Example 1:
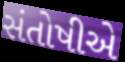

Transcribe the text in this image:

સંતોષીએ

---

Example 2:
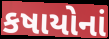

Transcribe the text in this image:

કષાયોનાં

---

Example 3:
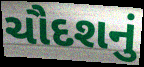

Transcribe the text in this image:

ચૌદશનું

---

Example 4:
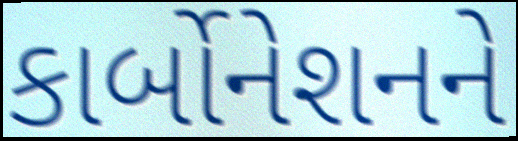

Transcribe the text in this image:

કાર્બોનેશનને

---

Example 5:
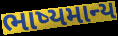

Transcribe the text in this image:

ભાષ્યમાન્ય